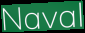
Naval